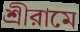
শ্রীরামে